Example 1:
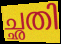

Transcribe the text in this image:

ച്ഛതി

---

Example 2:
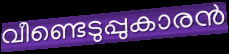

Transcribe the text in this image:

വീണ്ടെടുപ്പുകാരൻ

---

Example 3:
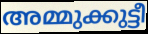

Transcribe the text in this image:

അമ്മുക്കുട്ടീ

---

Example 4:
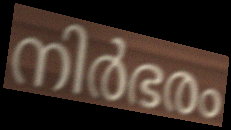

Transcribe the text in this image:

നിർഭരം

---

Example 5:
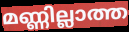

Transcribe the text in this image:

മണ്ണില്ലാത്ത